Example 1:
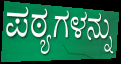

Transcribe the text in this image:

ಪಠ್ಯಗಳನ್ನು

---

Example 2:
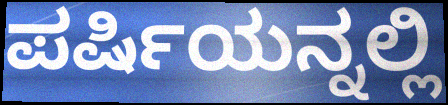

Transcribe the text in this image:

ಪರ್ಷಿಯನ್ನಲ್ಲಿ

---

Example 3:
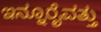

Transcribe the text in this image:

ಇನ್ನೂರೈವತ್ತು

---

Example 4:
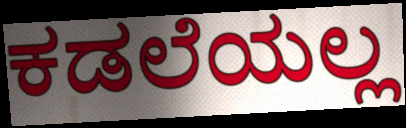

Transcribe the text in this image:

ಕಡಲೆಯಲ್ಲ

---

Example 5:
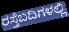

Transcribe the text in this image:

ರಸ್ತೆಬದಿಗಳಲ್ಲಿ